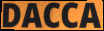
DACCA